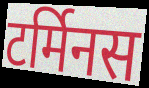
टर्मिनस